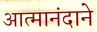
आत्मानंदाने